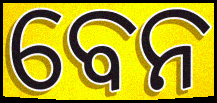
ବେନ